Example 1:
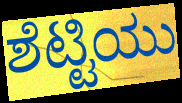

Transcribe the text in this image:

ಶೆಟ್ಟಿಯು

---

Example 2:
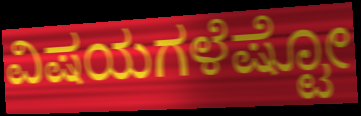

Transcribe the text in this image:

ವಿಷಯಗಳೆಷ್ಟೋ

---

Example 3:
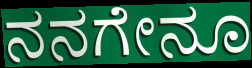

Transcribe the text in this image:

ನನಗೇನೂ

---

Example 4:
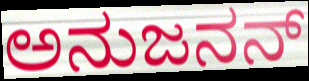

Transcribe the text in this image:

ಅನುಜನನ್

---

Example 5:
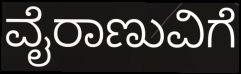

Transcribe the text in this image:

ವೈರಾಣುವಿಗೆ